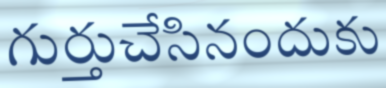
గుర్తుచేసినందుకు